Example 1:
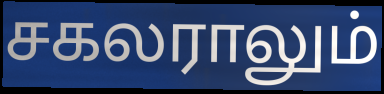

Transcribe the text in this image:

சகலராலும்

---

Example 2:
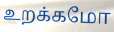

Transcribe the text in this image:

உறக்கமோ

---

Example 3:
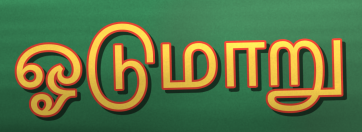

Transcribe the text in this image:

ஓடுமாறு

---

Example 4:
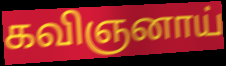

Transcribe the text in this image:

கவிஞனாய்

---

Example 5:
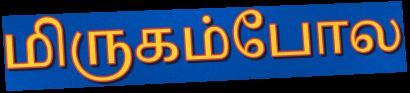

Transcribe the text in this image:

மிருகம்போல